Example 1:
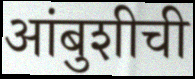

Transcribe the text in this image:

आंबुशीची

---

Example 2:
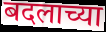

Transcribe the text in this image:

बदलाच्या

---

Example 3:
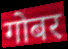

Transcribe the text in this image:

गोबर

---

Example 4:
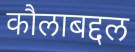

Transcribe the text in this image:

कौलाबद्दल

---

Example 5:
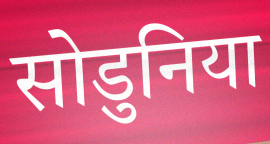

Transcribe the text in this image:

सोडुनिया